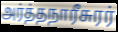
அர்த்தநாரீசுரர்